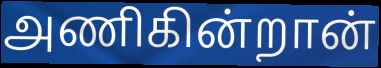
அணிகின்றான்